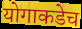
योगाकडेच